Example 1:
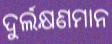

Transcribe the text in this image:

ଦୁର୍ଲକ୍ଷଣମାନ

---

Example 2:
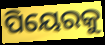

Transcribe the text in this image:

ପିୟେରକୁ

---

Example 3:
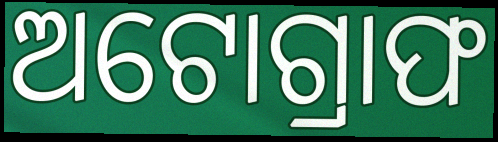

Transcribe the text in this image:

ଅଟୋଗ୍ରାଫ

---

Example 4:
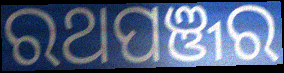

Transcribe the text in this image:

ରଥପଞ୍ଜର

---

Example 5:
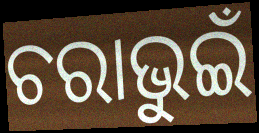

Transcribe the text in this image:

ଚରାଭୁଇଁ